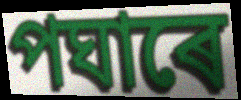
পঘাৰে